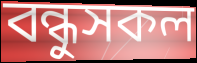
বন্ধুসকল